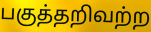
பகுத்தறிவற்ற